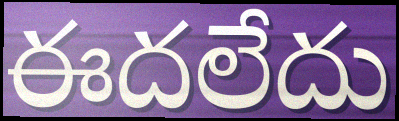
ఈదలేదు